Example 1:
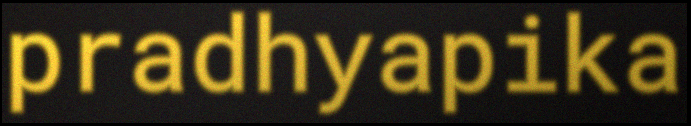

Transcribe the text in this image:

pradhyapika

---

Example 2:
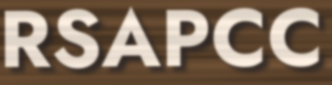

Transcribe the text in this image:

RSAPCC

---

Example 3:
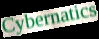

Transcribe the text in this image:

Cybernatics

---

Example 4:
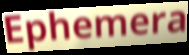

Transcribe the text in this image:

Ephemera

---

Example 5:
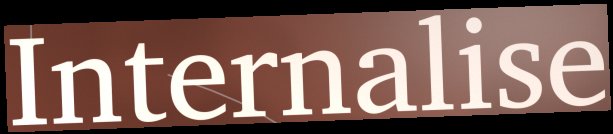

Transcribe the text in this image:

Internalise